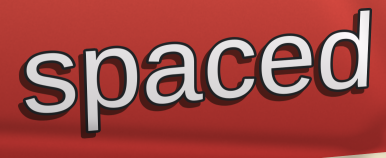
spaced